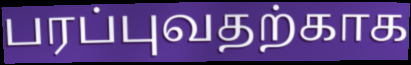
பரப்புவதற்காக